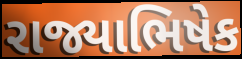
રાજ્યાભિષેક